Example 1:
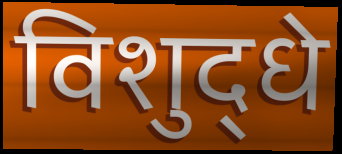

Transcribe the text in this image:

विशुद्धे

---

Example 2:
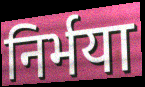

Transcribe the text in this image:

निर्भया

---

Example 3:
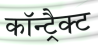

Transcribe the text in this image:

कॉन्‍ट्रैक्‍ट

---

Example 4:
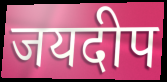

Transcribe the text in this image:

जयदीप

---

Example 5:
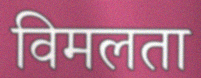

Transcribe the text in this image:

विमलता